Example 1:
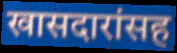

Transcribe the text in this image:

खासदारांसह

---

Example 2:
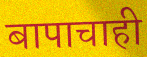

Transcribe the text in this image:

बापाचाही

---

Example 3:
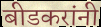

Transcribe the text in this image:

बीडकरांनी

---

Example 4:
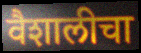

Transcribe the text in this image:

वैशालीचा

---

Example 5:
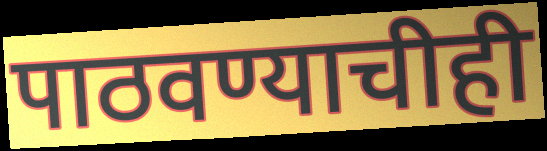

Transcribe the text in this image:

पाठवण्याचीही